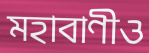
মহাবাণীও